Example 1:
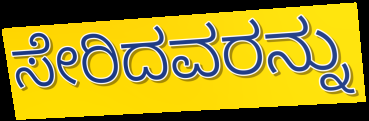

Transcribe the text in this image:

ಸೇರಿದವರನ್ನು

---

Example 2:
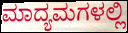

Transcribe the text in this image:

ಮಾದ್ಯಮಗಳಲ್ಲಿ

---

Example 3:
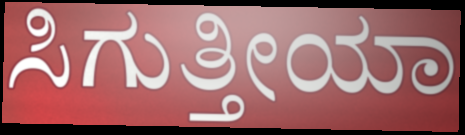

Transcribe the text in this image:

ಸಿಗುತ್ತೀಯಾ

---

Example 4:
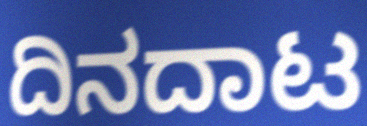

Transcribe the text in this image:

ದಿನದಾಟ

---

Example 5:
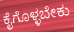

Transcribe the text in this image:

ಕೈಗೊಳ್ಳಬೇಕು